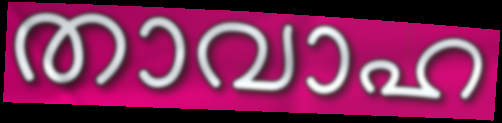
താവാഹ